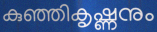
കുഞ്ഞികൃഷ്ണനും